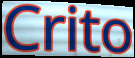
Crito